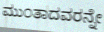
ಮುಂತಾದವರನ್ನೇ